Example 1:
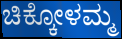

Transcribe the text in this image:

ಚಿಕ್ಕೋಳಮ್ಮ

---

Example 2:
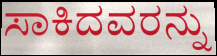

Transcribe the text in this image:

ಸಾಕಿದವರನ್ನು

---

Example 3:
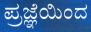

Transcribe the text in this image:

ಪ್ರಜ್ಞೆಯಿಂದ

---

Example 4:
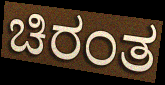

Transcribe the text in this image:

ಚಿರಂತ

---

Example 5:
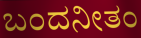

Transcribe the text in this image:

ಬಂದನೀತಂ